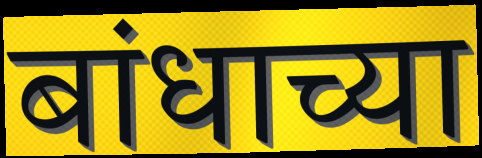
बांधाच्या